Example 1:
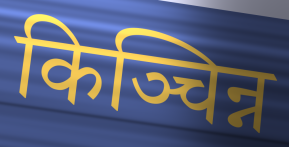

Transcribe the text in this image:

किञ्चिन्न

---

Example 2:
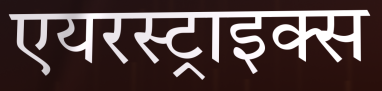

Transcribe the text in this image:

एयरस्ट्राइक्स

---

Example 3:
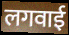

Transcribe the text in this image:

लगवाई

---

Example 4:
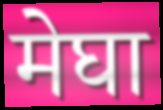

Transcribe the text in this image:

मेघा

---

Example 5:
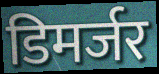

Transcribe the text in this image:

डिमर्जर